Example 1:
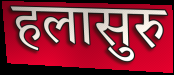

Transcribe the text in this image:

हलासुरु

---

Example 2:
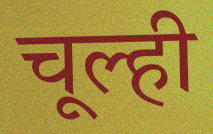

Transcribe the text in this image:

चूल्ही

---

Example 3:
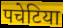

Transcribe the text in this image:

पचेटिया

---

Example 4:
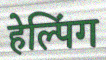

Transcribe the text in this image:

हेल्पिंग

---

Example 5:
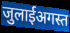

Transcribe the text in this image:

जुलाईअगस्त